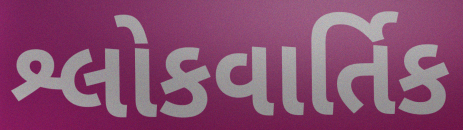
શ્લોકવાર્તિક